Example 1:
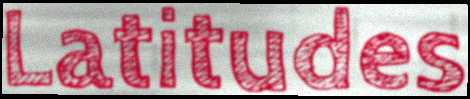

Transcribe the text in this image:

Latitudes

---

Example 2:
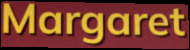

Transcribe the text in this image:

Margaret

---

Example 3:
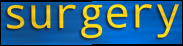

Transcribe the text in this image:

surgery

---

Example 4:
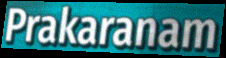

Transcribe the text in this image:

Prakaranam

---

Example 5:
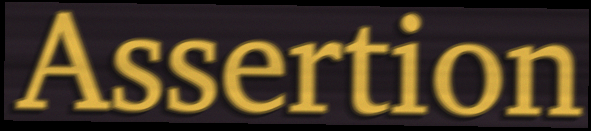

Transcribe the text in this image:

Assertion